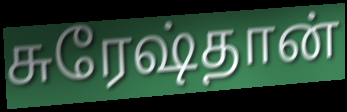
சுரேஷ்தான்